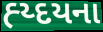
હ્ય્દયના